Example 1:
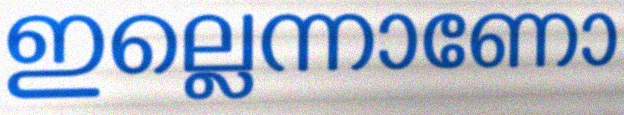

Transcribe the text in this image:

ഇല്ലെന്നാണോ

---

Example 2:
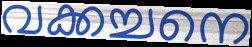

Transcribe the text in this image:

വക്കച്ചനെ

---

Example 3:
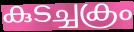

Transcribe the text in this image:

കുടച്ചക്രം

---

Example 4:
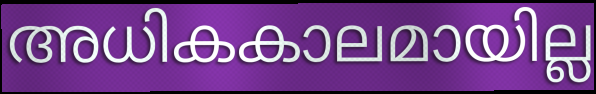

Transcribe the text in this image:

അധികകാലമായില്ല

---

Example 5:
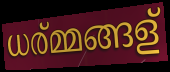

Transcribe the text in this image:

ധര്മ്മങ്ങള്